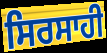
ਸਿਰਸਾਹੀ